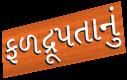
ફળદ્રૂપતાનું